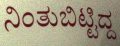
ನಿಂತುಬಿಟ್ಟಿದ್ದ